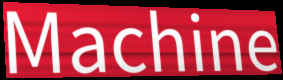
Machine